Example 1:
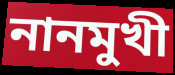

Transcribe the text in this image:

নানমুখী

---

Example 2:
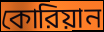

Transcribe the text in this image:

কোরিয়ান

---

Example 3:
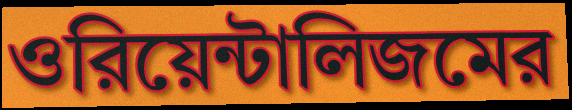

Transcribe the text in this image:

ওরিয়েন্টালিজমের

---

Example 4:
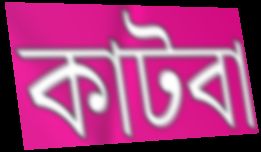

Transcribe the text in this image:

কাটবা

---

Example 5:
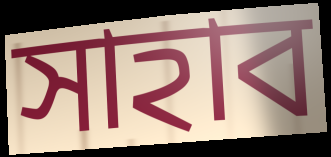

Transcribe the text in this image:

সাহাব